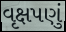
વૃક્ષપણું